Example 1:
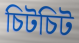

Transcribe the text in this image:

চিটচিট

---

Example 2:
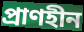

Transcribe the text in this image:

প্রাণহীন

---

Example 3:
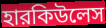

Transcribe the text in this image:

হারকিউলেস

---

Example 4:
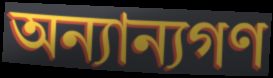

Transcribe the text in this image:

অন্যান্যগণ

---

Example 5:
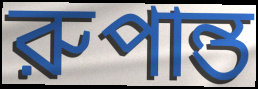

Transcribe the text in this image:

রুপান্ত